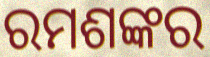
ରମଶଙ୍କର